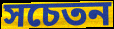
সচেতন